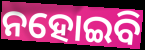
ନହୋଇବି